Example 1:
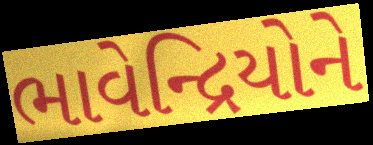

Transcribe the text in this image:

ભાવેન્દ્રિયોને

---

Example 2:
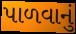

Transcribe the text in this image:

પાળવાનું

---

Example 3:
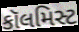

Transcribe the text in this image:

કૉલમિસ્ટ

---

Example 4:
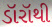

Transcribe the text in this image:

ડૉરૉથી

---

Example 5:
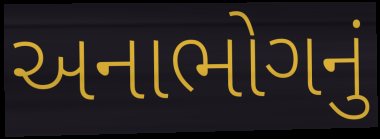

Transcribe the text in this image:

અનાભોગનું